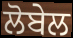
ਲੋਬੇਲ